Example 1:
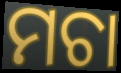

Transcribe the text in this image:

ମଚା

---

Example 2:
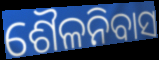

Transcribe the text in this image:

ଶୈଳନିବାସ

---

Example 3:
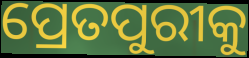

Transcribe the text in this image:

ପ୍ରେତପୁରୀକୁ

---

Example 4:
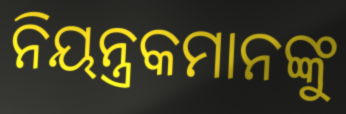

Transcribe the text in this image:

ନିୟନ୍ତ୍ରକମାନଙ୍କୁ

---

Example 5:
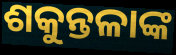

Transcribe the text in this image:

ଶକୁନ୍ତଳାଙ୍କ